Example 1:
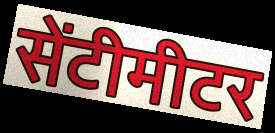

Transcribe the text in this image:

सेंटीमीटर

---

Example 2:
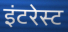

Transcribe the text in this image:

इंटरेस्ट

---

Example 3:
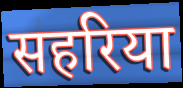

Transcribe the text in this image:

सहरिया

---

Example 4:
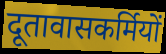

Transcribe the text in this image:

दूतावासकर्मियों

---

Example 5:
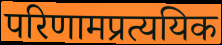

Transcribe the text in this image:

परिणामप्रत्ययिक